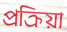
প্ৰক্ৰিয়া